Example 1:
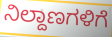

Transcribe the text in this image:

ನಿಲ್ದಾಣಗಳಿಗೆ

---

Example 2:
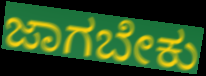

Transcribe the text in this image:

ಜಾಗಬೇಕು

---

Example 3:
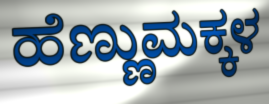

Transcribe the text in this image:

ಹೆಣ್ಣುಮಕ್ಕಳ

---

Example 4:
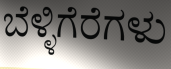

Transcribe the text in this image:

ಬೆಳ್ಳಿಗೆರೆಗಳು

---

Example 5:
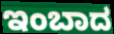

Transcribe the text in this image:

ಇಂಬಾದ